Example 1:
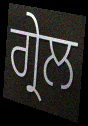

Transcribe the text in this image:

ਗ੍ਰੇਲ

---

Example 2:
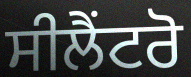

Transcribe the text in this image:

ਸੀਲੈਂਟਰੋ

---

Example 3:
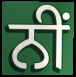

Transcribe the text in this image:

ਨੀਂ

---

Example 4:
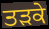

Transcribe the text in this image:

ਤੜਕੇ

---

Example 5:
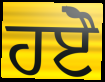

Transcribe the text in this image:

ਹਏੋ